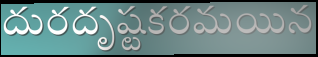
దురదృష్టకరమయిన